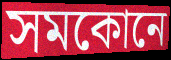
সমকোনে